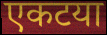
एकटया